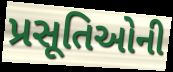
પ્રસૂતિઓની